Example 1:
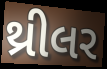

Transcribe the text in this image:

થ્રીલર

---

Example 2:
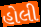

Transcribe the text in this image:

હોલી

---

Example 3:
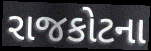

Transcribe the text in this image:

રાજકોટના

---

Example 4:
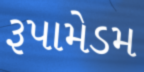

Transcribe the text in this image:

રૂપામેડમ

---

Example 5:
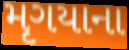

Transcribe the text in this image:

મૃગયાના